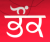
ਭੌਂਕ